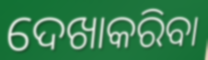
ଦେଖାକରିବା